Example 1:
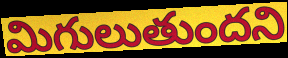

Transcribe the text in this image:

మిగులుతుందని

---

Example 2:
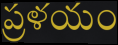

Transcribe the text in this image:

ప్రళయం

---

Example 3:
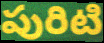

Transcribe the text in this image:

పురిటి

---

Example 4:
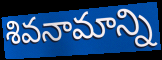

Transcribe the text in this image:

శివనామాన్ని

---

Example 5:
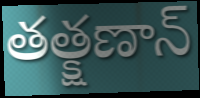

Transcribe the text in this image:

తత్క్షణాన్